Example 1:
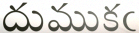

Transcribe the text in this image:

దుముకఁ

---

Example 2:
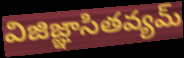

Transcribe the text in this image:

విజిజ్ఞాసితవ్యమ్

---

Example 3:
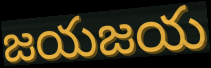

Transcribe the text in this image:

జయజయ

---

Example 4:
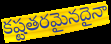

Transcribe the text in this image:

కష్టతరమైనదైనా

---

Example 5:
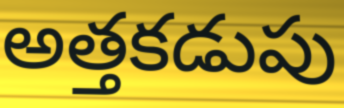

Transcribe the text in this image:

అత్తకడుపు